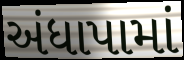
અંધાપામાં